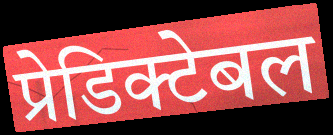
प्रेडिक्टेबल